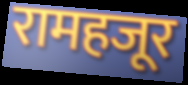
रामहजूर